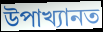
উপাখ্যানত